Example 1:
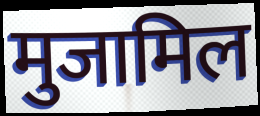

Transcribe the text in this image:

मुजामिल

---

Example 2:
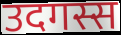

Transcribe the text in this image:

उदगस्स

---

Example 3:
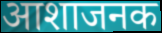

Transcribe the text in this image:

आशाजनक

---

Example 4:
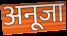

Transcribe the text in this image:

अनूजा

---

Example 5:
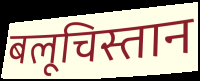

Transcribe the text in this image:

बलूचिस्‍तान